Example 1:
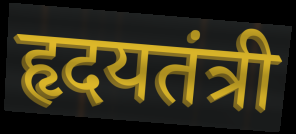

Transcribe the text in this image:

हृदयतंत्री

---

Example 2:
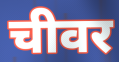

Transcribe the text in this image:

चीवर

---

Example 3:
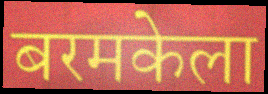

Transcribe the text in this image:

बरमकेला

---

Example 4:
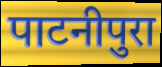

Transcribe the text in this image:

पाटनीपुरा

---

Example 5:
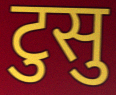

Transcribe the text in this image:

टुसु